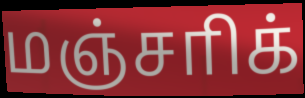
மஞ்சரிக்